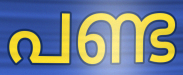
പണ്ട